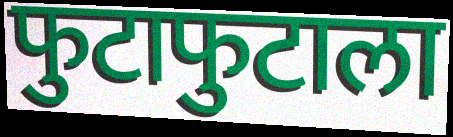
फुटाफुटाला